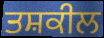
ਤਸ਼ਕੀਲ